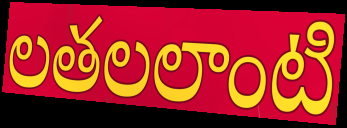
లతలలాంటి